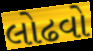
લોઢવો